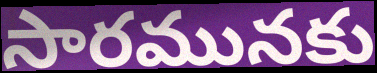
సారమునకు